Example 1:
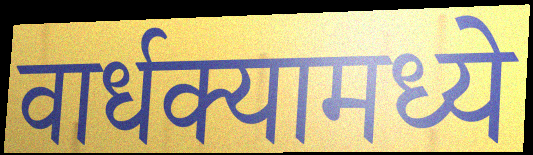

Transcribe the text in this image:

वार्धक्यामध्ये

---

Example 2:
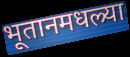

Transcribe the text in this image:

भूतानमधल्या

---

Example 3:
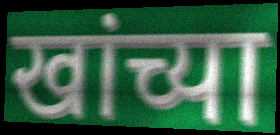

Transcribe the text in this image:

खांच्या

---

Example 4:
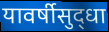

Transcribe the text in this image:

यावर्षीसुद्धा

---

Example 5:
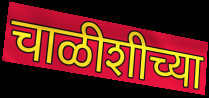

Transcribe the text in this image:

चाळीशीच्या